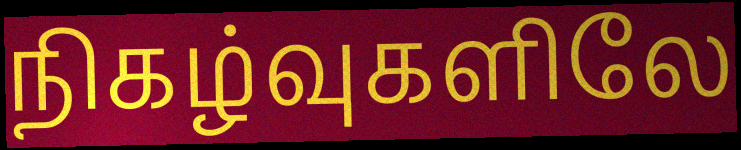
நிகழ்வுகளிலே